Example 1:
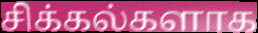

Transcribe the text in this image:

சிக்கல்களாக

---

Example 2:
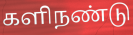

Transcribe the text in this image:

களிநண்டு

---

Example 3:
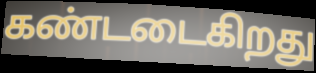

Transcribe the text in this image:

கண்டடைகிறது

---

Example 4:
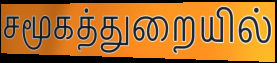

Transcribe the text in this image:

சமூகத்துறையில்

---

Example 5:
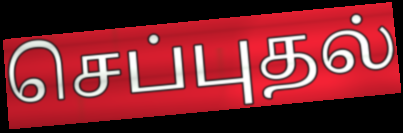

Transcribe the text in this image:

செப்புதல்